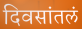
दिवसांतलं